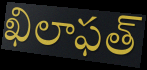
ఖిలాఫత్